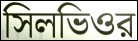
সিলভিওর